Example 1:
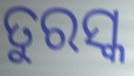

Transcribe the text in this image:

ତୁରସ୍କ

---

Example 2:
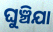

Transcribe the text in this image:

ଘୁଞ୍ଚିଯା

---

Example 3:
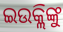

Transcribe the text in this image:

ଇଉକ୍ଲିଙ୍କୁ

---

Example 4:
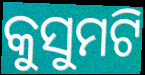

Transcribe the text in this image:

କୁସୁମଟି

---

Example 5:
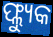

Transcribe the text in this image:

ଫ୍ଲ୍ୟୁକ